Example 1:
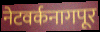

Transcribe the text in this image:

नेटवर्कनागपूर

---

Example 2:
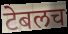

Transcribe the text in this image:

टेबलच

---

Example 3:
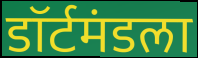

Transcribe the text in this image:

डॉर्टमंडला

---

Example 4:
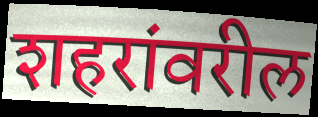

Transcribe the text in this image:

शहरांवरील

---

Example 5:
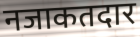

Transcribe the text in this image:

नजाकतदार